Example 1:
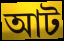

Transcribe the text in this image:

আট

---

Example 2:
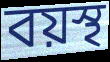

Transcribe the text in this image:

বয়স্থ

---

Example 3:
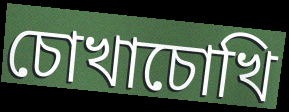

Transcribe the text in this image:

চোখাচোখি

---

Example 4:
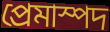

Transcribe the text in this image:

প্রেমাস্পদ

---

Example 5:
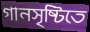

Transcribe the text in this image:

গানসৃষ্টিতে